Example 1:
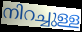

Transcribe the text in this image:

നിറച്ചുള്ള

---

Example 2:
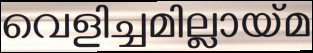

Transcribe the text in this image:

വെളിച്ചമില്ലായ്മ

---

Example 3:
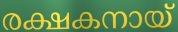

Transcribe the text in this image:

രക്ഷകനായ്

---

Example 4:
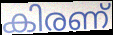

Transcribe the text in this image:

കിരണ്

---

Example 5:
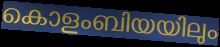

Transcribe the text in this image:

കൊളംബിയയിലും